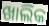
ଖାଲିକ